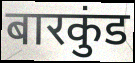
बारकुंड